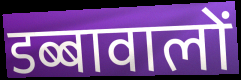
डब्बावालों